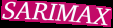
SARIMAX